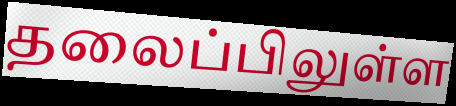
தலைப்பிலுள்ள